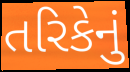
તરિકેનું